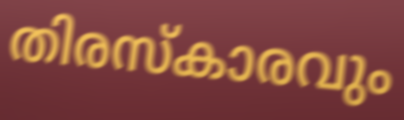
തിരസ്കാരവും